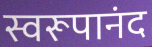
स्‍वरूपानंद